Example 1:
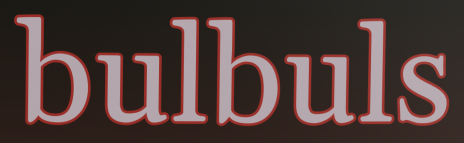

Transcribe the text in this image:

bulbuls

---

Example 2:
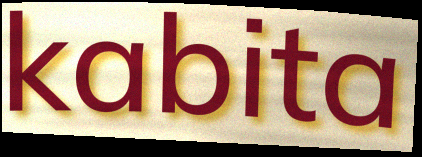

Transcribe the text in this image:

kabita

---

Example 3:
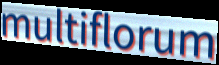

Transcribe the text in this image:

multiflorum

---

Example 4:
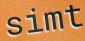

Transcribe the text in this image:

simt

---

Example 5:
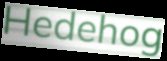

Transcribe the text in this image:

Hedehog